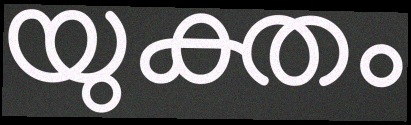
യുക്തം